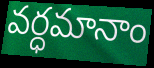
వర్ధమానాం